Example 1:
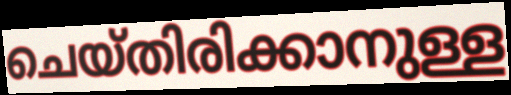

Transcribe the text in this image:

ചെയ്തിരിക്കാനുള്ള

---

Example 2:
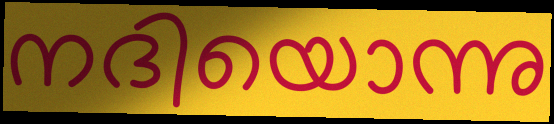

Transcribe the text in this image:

നദിയൊന്നു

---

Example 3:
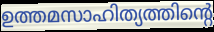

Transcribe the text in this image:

ഉത്തമസാഹിത്യത്തിന്റെ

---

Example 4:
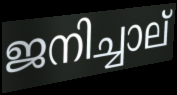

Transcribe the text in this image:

ജനിച്ചാല്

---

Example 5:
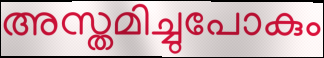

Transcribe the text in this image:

അസ്തമിച്ചുപോകും